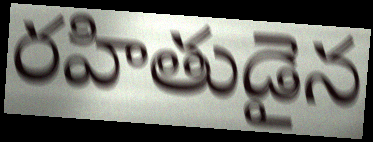
రహితుడైన